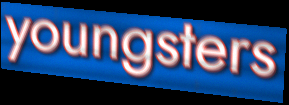
youngsters